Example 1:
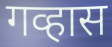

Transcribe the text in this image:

गव्हास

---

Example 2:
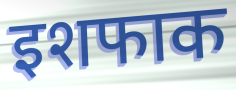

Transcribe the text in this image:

इशफाक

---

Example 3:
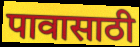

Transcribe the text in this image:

पावासाठी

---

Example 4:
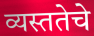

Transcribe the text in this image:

व्यस्ततेचे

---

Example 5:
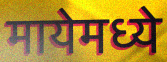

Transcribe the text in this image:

मायेमध्ये